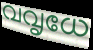
വവൃധേ